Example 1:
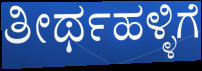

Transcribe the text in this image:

ತೀರ್ಥಹಳ್ಳಿಗೆ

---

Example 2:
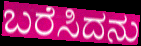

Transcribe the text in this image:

ಬರೆಸಿದನು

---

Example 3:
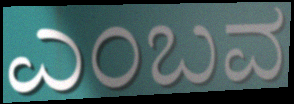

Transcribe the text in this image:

ಎಂಬವ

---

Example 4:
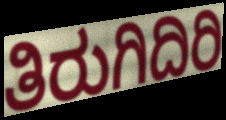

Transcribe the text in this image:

ತಿರುಗಿದಿರಿ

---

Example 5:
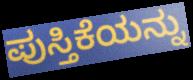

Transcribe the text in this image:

ಪುಸ್ತಿಕೆಯನ್ನು